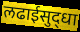
लढाईसुद्धा